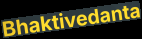
Bhaktivedanta